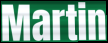
Martin